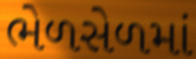
ભેળસેળમાં